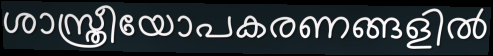
ശാസ്ത്രീയോപകരണങ്ങളിൽ